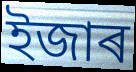
ইজাৰ